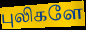
புலிகளே